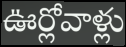
ఊర్లోవాళ్లు